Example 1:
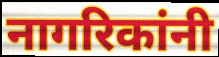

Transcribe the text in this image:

नागरिकांनी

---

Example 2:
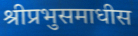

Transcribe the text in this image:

श्रीप्रभुसमाधीस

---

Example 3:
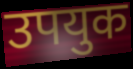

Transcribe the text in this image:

उपयुक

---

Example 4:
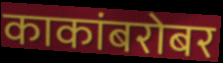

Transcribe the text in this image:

काकांबरोबर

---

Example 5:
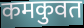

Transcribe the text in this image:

कमकुवत